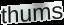
thums